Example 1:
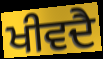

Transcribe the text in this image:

ਖੀਵਦੈ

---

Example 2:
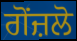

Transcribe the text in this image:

ਗੋਂਜ਼ਲੋ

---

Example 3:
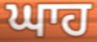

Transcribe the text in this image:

ਘਾਹ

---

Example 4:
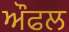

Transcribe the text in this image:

ਔਫਲ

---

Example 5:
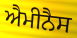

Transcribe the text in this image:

ਐਮੀਨੈਸ